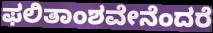
ಫಲಿತಾಂಶವೇನೆಂದರೆ